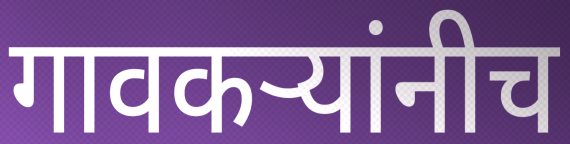
गावकऱ्यांनीच